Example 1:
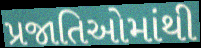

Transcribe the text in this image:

પ્રજાતિઓમાંથી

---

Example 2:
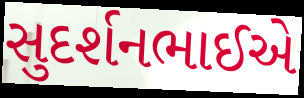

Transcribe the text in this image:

સુદર્શનભાઈએ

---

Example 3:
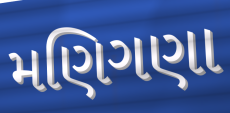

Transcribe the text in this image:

મણિગણા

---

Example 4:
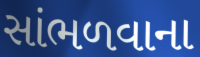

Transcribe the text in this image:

સાંભળવાના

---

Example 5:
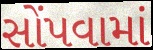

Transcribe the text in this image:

સોંપવામાં